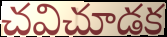
చవిచూడక